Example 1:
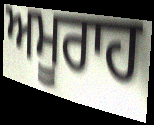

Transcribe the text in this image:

ਅਮੂਰਾਹ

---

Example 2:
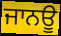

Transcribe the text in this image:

ਜਾਨਊ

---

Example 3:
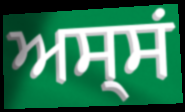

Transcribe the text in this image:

ਅਸ੍ਸਂ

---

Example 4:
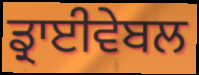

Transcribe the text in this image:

ਡ੍ਰਾਈਵੇਬਲ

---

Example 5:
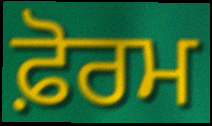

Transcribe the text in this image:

ਫ਼ੋਰਮ